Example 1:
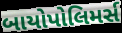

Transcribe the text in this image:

બાયોપોલિમર્સ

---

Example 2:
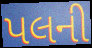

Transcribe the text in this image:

પલની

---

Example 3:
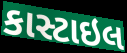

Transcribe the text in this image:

કાસ્ટાઇલ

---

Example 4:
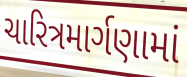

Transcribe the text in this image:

ચારિત્રમાર્ગણામાં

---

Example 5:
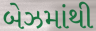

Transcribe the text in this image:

બેઝમાંથી